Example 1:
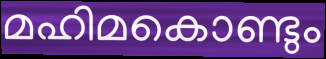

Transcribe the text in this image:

മഹിമകൊണ്ടും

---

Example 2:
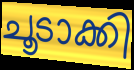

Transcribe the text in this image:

ചൂടാക്കി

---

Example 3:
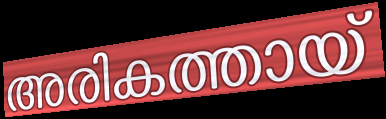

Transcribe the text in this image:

അരികത്തായ്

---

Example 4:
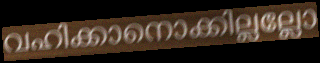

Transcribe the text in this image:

വഹിക്കാനൊക്കില്ലല്ലോ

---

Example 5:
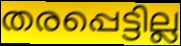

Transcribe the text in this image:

തരപ്പെട്ടില്ല